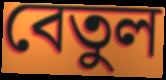
বেতুল